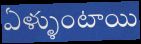
ఏళ్ళుంటాయి